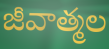
జీవాత్మల